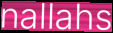
nallahs